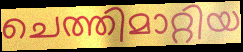
ചെത്തിമാറ്റിയ